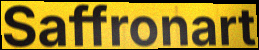
Saffronart